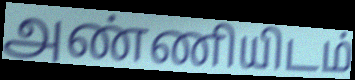
அண்ணியிடம்